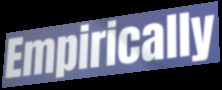
Empirically